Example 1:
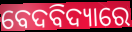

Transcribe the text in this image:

ବେଦବିଦ୍ୟାରେ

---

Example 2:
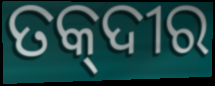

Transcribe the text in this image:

ତକ୍‌ଦୀର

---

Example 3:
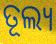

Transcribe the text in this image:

ତୂଲ୍ୟ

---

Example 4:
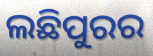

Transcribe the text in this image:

ଲଛିପୁରର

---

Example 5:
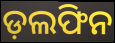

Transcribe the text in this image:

ଡ଼ଲଫିନ